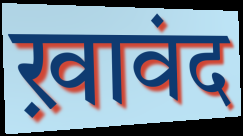
ख़ावंद